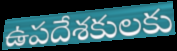
ఉపదేశకులకు